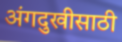
अंगदुखीसाठी